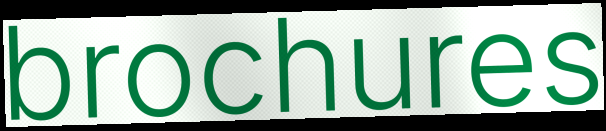
brochures